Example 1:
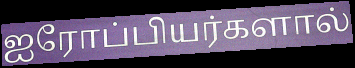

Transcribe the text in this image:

ஐரோப்பியர்களால்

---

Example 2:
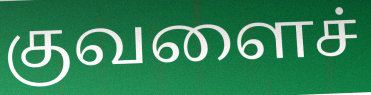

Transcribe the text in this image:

குவளைச்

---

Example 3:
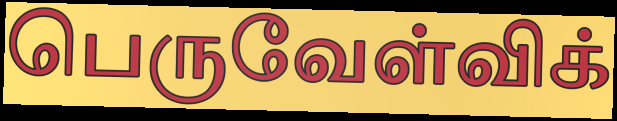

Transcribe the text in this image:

பெருவேள்விக்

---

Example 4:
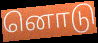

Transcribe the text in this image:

னொடு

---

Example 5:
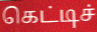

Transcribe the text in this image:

கெட்டிச்